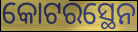
କୋଟରସ୍ଥେନ